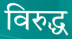
विरुद्ध